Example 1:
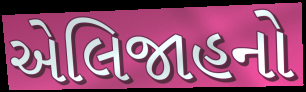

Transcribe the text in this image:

એલિજાહનો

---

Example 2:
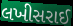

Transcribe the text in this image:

લખીસરાઈ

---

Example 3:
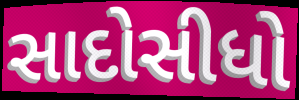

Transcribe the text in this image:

સાદોસીધો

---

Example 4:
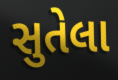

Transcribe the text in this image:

સુતેલા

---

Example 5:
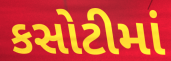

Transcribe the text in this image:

કસોટીમાં